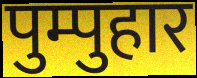
पुम्पुहार